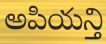
అపియన్తి